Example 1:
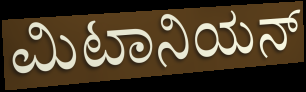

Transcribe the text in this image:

ಮಿಟಾನಿಯನ್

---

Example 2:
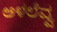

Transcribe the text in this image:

ಅಳಲೆವ್ವ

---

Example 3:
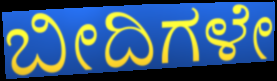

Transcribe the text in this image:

ಬೀದಿಗಳೇ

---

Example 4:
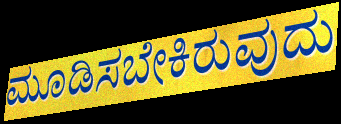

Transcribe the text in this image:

ಮೂಡಿಸಬೇಕಿರುವುದು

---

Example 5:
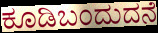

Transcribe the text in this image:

ಕೂಡಿಬಂದುದನೆ